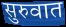
सुरुवात